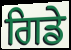
ਗਿਡੇ